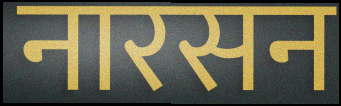
नारसन